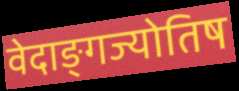
वेदाङ्गज्योतिष